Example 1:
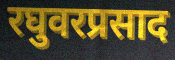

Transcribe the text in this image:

रघुवरप्रसाद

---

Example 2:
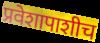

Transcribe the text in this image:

प्रवेशापाशीच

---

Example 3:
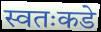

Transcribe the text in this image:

स्वतःकडे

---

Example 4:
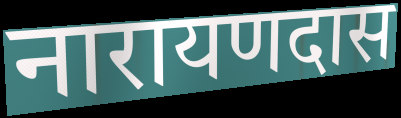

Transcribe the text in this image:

नारायणदास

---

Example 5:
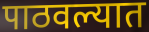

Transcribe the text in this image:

पाठवल्यात